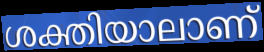
ശക്തിയാലാണ്